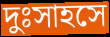
দুঃসাহসে